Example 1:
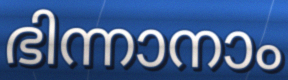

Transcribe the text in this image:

ഭിന്നാനാം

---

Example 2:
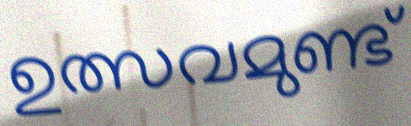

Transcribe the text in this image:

ഉത്സവമുണ്ട്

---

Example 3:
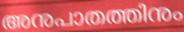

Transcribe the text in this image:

അനുപാതത്തിനും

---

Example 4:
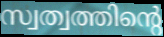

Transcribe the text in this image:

സ്വത്വത്തിന്റെ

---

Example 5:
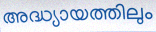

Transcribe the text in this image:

അദ്ധ്യായത്തിലും